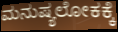
ಮನುಷ್ಯಲೋಕಕ್ಕೆ